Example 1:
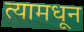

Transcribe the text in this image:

त्यामधून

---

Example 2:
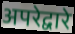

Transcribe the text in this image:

अपरेद्वारे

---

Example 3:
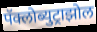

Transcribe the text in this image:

पॅक्लोब्युट्राझोल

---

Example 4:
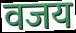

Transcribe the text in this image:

वजय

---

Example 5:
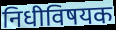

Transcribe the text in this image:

निधीविषयक